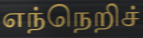
எந்நெறிச்